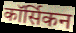
कॉर्सिकन